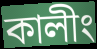
কালীং